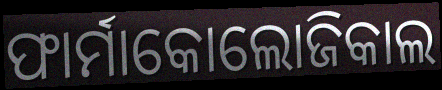
ଫାର୍ମାକୋଲୋଜିକାଲ